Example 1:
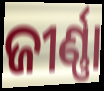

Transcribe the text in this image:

ଜୀର୍ଣ୍ଣା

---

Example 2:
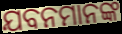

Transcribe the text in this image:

ଯବନମାନଙ୍କ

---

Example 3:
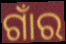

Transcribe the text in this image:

ଗାଁର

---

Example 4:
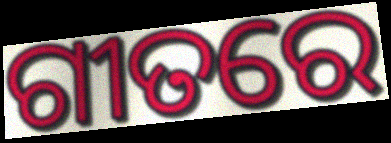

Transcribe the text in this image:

ଗୀତରେ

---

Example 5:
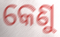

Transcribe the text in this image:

କେଣୁ